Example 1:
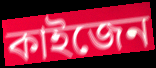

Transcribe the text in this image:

কাইজেন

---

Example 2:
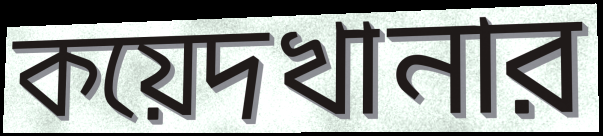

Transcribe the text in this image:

কয়েদখানার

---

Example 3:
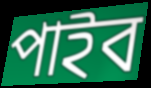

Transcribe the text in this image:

পাইব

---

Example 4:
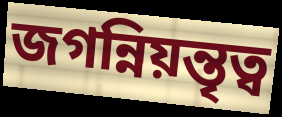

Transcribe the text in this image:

জগন্নিয়ন্তৃত্ব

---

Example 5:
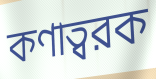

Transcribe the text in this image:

কণাত্বরক